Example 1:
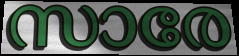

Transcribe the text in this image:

സാരേ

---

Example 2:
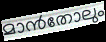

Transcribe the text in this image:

മാൻതോലും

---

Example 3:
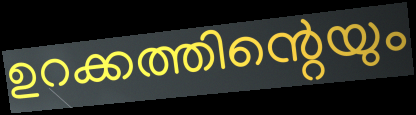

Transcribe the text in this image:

ഉറക്കത്തിന്റെയും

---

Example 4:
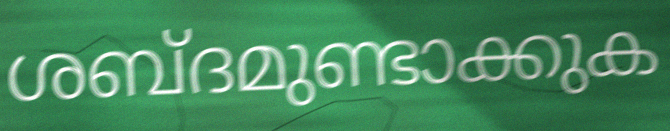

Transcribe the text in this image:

ശബ്ദമുണ്ടാക്കുക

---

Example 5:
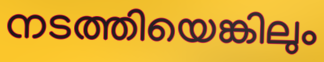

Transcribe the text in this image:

നടത്തിയെങ്കിലും